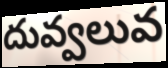
దువ్వలువ